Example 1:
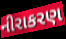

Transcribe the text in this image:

નીરાકરણ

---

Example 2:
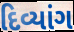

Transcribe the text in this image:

દિવ્યાંગ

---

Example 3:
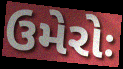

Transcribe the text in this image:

ઉમેરોઃ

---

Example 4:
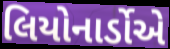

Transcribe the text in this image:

લિયોનાર્ડોએ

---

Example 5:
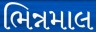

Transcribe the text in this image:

ભિન્નમાલ